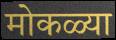
मोकळ्या